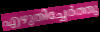
എഴുതിച്ചേർത്തു